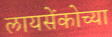
लायसेंकोच्या